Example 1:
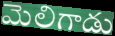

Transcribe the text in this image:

మెలిగాడు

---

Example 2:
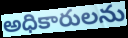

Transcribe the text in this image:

అధికారులను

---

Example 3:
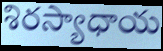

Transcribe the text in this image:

శిరస్యాధాయ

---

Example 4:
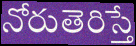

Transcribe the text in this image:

నోరుతెరిస్తే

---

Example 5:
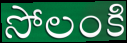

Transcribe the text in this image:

సోలంకి